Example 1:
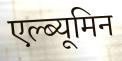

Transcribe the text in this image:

एल्ब्यूमिन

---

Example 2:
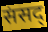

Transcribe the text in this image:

संसद्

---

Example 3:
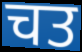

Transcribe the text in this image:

चउ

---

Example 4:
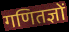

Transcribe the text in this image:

गणितज्ञों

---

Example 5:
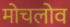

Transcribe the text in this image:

मोचलोव